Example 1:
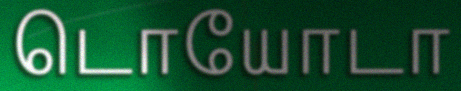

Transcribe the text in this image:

டொயோடா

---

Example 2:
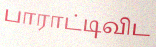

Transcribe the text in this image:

பாராட்டிவிட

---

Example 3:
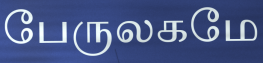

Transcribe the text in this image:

பேருலகமே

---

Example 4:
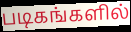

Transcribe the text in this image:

படிகங்களில்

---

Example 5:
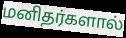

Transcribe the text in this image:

மனிதர்களால்